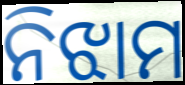
ନିଝାମ